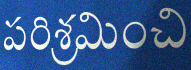
పరిశ్రమించి